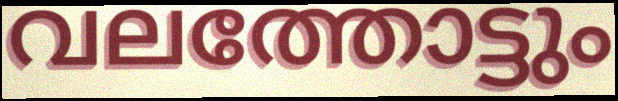
വലത്തോട്ടും